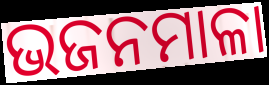
ଭଜନମାଳା